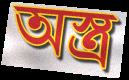
অস্ত্র